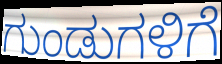
ಗುಂಡುಗಳಿಗೆ